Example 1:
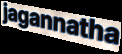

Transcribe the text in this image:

jagannatha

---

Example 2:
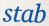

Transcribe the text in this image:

stab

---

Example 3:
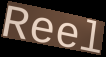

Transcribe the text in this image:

Reel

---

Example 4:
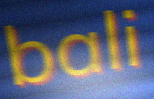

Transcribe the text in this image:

bali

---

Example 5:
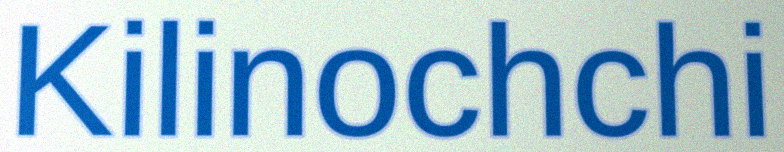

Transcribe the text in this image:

Kilinochchi